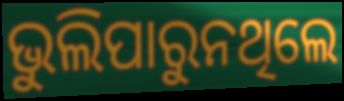
ଭୁଲିପାରୁନଥିଲେ